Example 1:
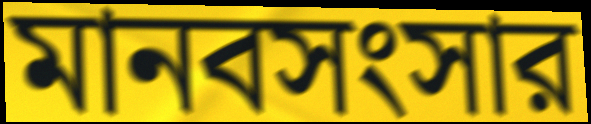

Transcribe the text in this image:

মানবসংসার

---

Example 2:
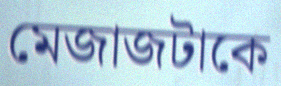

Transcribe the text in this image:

মেজাজটাকে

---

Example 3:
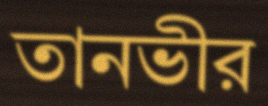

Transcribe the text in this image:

তানভীর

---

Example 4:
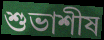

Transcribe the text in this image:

শুভাশীষ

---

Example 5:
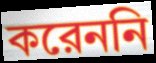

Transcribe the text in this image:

করেননি